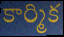
కార్మిక